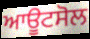
ਆਊਟਸੋਲ